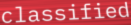
classified